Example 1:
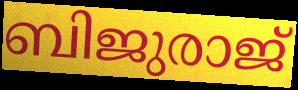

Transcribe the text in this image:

ബിജുരാജ്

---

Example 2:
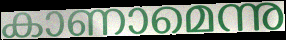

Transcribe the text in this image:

കാണാമെന്നു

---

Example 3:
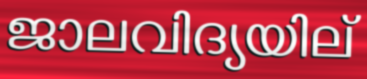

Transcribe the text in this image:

ജാലവിദ്യയില്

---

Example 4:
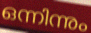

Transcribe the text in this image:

ഒന്നിന്നും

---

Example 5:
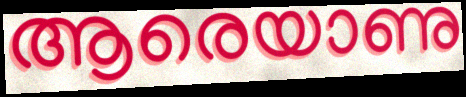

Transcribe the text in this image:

ആരെയാണു